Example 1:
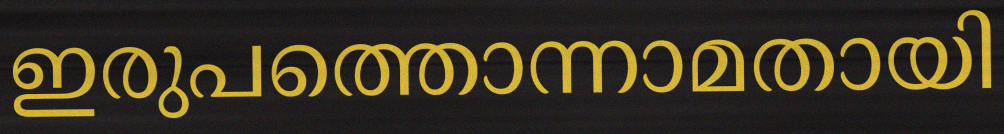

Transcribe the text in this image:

ഇരുപത്തൊന്നാമതായി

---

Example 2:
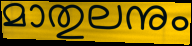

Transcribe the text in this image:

മാതുലനും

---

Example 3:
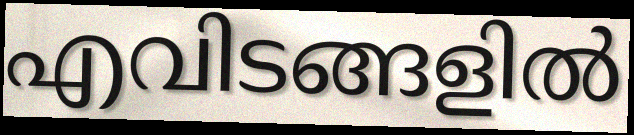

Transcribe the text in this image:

എവിടങ്ങളിൽ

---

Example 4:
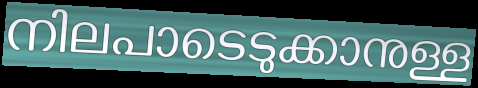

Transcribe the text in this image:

നിലപാടെടുക്കാനുള്ള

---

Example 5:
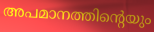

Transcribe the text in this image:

അപമാനത്തിന്റെയും